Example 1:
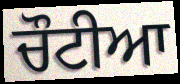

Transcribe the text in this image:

ਚੌਟੀਆ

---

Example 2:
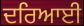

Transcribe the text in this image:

ਦਰਿਆਈ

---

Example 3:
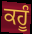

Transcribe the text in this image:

ਕਹੂੰ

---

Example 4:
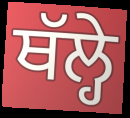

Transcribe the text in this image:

ਥੱਲ੍ਹੇ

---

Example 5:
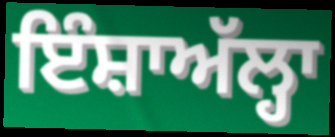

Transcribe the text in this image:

ਇੰਸ਼ਾਅੱਲ੍ਹਾ